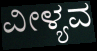
ವೀಳ್ಯವ